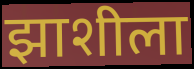
झाशीला